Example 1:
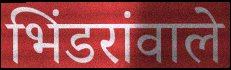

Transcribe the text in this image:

भिंडरांवाले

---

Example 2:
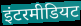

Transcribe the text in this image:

इंटरमीडियट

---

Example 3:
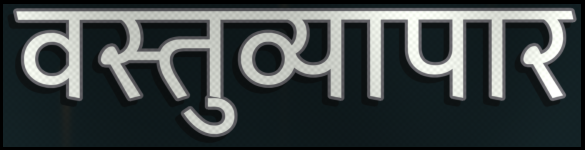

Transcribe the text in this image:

वस्तुव्यापार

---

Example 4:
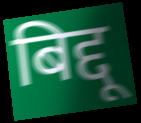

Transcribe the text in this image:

बिद्दू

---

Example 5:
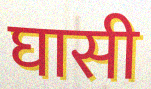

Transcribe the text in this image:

घासी